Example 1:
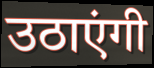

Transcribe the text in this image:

उठाएंगी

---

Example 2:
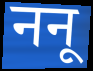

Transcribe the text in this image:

ननू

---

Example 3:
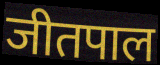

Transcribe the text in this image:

जीतपाल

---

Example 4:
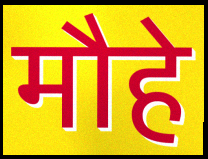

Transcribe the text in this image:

मौहे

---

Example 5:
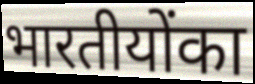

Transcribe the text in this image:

भारतीयोंका